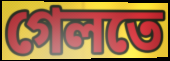
গেলতে